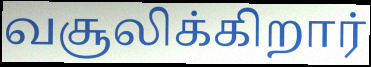
வசூலிக்கிறார்